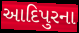
આદિપુરના